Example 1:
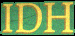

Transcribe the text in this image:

IDH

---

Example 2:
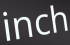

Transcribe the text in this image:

inch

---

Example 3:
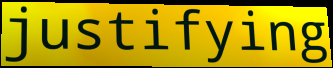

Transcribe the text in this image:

justifying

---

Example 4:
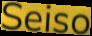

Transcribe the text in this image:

Seiso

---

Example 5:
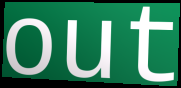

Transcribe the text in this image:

out